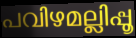
പവിഴമല്ലിപ്പൂ